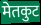
मेतकुट